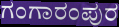
ಗಂಗಾರಂಪುರ